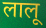
लालू